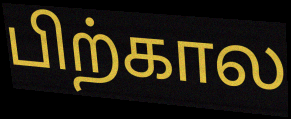
பிற்கால